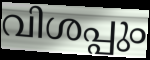
വിശപ്പും